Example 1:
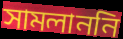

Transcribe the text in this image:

সামলাননি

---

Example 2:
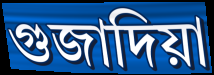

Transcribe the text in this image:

গুজাদিয়া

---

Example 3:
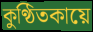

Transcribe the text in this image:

কুণ্ঠিতকায়ে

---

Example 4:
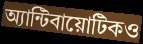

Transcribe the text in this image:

অ্যান্টিবায়োটিকও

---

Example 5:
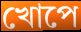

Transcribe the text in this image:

খোপে